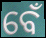
ବେଁ